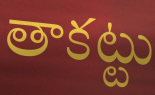
తాకట్టు